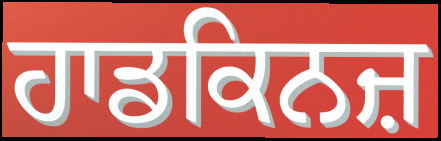
ਹਾਡਕਿਨਜ਼